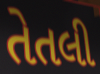
તેતલી